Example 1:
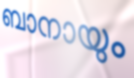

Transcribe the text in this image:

ബാനായും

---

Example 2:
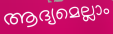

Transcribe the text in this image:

ആദ്യമെല്ലാം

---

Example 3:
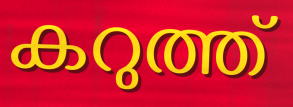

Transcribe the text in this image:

കറുത്ത്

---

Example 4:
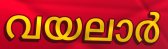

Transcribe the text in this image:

വയലാർ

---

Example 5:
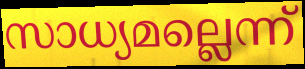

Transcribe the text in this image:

സാധ്യമല്ലെന്ന്